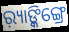
ର଼୍ୟାଙ୍କିଙ୍ଗ୍ରେ